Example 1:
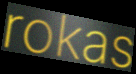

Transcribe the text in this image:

rokas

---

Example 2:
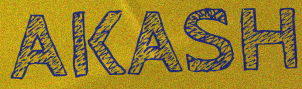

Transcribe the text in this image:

AKASH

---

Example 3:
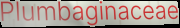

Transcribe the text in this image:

Plumbaginaceae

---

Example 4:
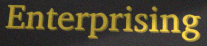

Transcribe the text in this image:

Enterprising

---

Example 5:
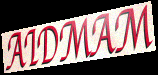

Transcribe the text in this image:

AIDMAM